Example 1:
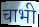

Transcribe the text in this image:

चाभी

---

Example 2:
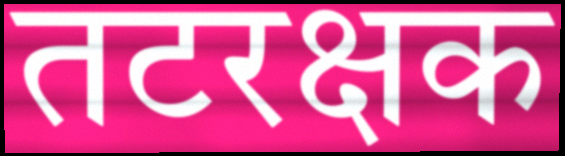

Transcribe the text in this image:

तटरक्षक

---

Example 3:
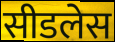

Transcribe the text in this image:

सीडलेस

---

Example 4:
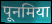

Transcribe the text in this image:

पूनमिया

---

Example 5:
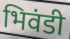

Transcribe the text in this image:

भिवंडी